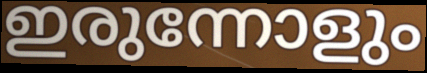
ഇരുന്നോളും